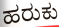
ಹರುಕು